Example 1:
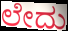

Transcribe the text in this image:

ಲೇದು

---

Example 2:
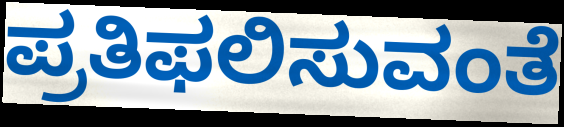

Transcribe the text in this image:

ಪ್ರತಿಫಲಿಸುವಂತೆ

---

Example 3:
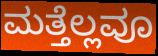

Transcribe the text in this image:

ಮತ್ತೆಲ್ಲವೂ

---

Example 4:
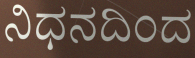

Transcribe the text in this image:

ನಿಧನದಿಂದ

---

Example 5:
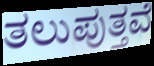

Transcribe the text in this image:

ತಲುಪುತ್ತವೆ